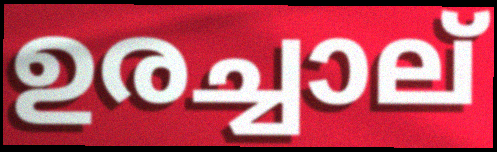
ഉരച്ചാല്